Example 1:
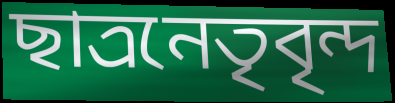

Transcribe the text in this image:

ছাত্রনেতৃবৃন্দ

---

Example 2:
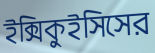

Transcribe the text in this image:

ইক্সিকুইসিসের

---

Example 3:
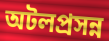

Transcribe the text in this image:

অটলপ্রসন্ন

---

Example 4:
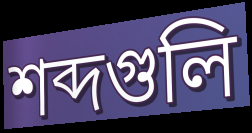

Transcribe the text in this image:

শব্দগুলি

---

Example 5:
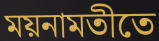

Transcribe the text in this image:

ময়নামতীতে